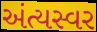
અંત્યસ્વર